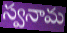
స్వనామ